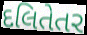
દલિતેતર